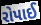
રોપાઈ